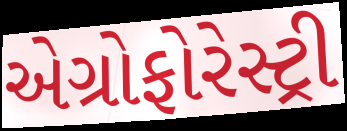
એગ્રોફોરેસ્ટ્રી